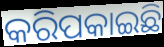
କରିପକାଇଛି